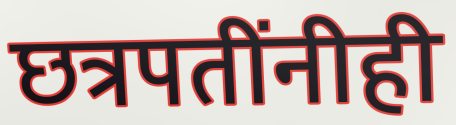
छत्रपतींनीही